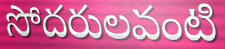
సోదరులవంటి